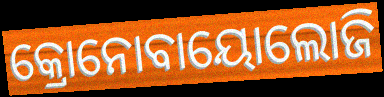
କ୍ରୋନୋବାୟୋଲୋଜି